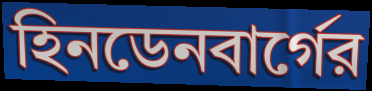
হিনডেনবার্গের